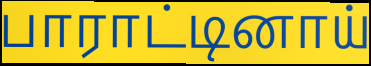
பாராட்டினாய்